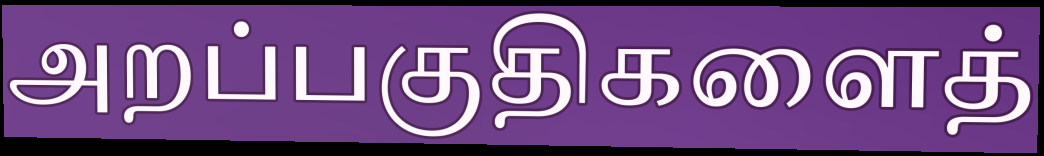
அறப்பகுதிகளைத்